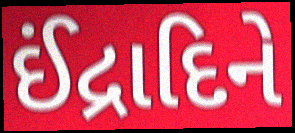
ઈંદ્રાદિને